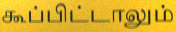
கூப்பிட்டாலும்